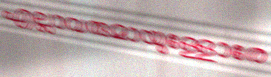
എല്ലാവരുമായുള്ളോരേ